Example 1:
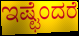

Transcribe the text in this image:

ಇಷ್ಟೆಂದರೆ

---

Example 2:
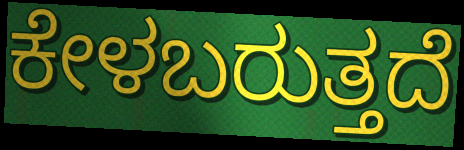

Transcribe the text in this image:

ಕೇಳಬರುತ್ತದೆ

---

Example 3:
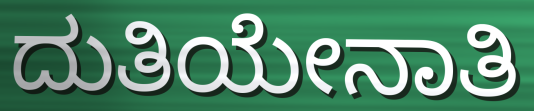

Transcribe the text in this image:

ದುತಿಯೇನಾತಿ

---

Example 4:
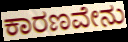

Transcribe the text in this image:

ಕಾರಣವೇನು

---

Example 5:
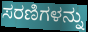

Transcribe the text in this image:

ಸರಣಿಗಳನ್ನು